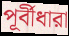
পূর্বীধারা